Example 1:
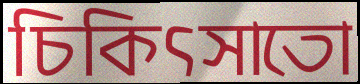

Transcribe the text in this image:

চিকিৎসাতো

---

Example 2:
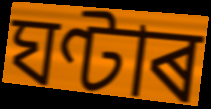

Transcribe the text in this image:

ঘণ্টাৰ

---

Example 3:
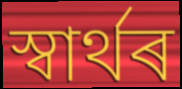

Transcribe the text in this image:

স্বাৰ্থৰ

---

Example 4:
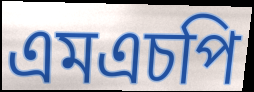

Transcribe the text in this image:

এমএচপি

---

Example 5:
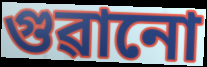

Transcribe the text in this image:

গুৱানো